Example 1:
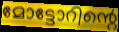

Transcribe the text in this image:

മോട്ടോറിന്റെ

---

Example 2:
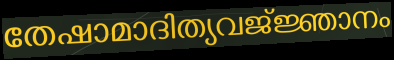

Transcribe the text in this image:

തേഷാമാദിത്യവജ്ജ്ഞാനം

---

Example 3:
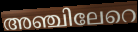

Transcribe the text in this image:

അഞ്ചിലേറെ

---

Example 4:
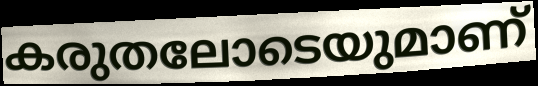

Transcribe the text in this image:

കരുതലോടെയുമാണ്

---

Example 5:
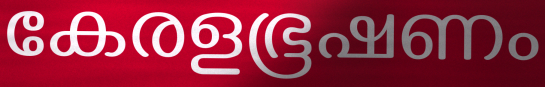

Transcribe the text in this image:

കേരളഭൂഷണം